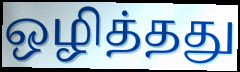
ஒழித்தது